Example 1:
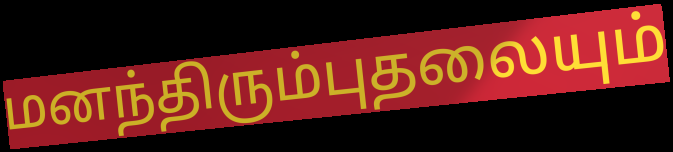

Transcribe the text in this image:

மனந்திரும்புதலையும்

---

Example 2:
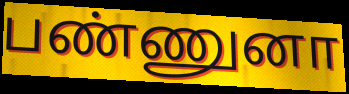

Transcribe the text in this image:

பண்ணுனா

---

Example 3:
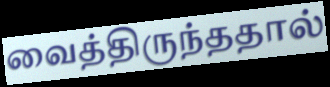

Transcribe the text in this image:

வைத்திருந்ததால்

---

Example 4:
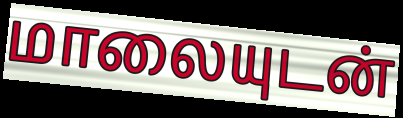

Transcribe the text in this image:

மாலையுடன்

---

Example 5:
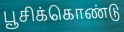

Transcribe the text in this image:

பூசிக்கொண்டு